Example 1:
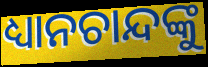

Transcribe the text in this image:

ଧ୍ୟାନଚାନ୍ଦଙ୍କୁ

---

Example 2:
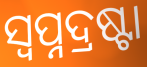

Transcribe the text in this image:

ସ୍ୱପ୍ନଦ୍ରଷ୍ଟା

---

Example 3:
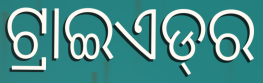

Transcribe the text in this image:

ଟ୍ରାଇଏଡ୍‌ର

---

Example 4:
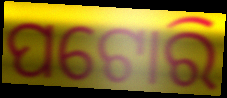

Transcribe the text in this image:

ପଟୋରି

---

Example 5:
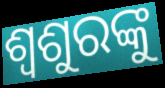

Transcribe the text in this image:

ଶ୍ୱଶୁରଙ୍କୁ